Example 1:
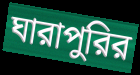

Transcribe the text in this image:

ঘারাপুরির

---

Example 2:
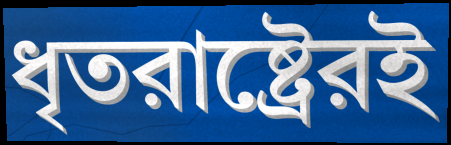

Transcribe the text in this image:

ধৃতরাষ্ট্রেরই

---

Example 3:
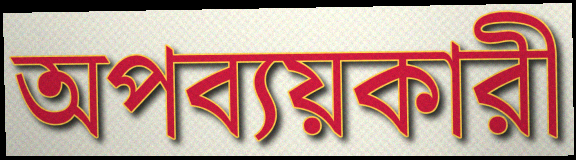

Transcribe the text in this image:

অপব্যয়কারী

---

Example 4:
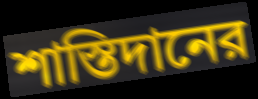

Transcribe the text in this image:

শাস্তিদানের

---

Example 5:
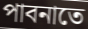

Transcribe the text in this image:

পাবনাতে